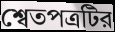
শ্বেতপত্রটির